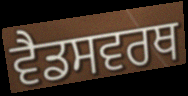
ਵੈਡਸਵਰਥ